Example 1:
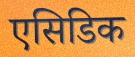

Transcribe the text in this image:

एसिडिक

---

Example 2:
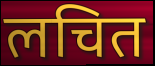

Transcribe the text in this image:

लचित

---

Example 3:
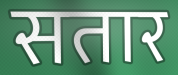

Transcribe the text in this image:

सतार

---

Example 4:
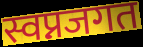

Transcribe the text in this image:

स्वप्नजगत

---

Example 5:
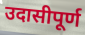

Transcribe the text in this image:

उदासीपूर्ण